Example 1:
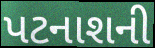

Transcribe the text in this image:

પટનાશની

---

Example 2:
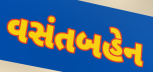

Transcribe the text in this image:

વસંતબહેન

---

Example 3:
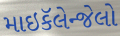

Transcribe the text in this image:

માઇકૅલેન્જેલો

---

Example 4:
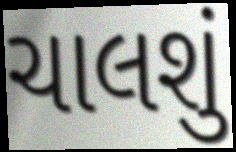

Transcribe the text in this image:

ચાલશું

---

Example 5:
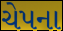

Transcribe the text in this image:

ચેપના